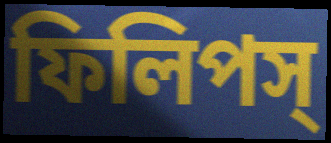
ফিলিপস্